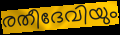
രതീദേവിയും